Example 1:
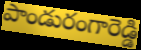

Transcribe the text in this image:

పాండురంగారెడ్డి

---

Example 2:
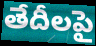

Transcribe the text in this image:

తేదీలపై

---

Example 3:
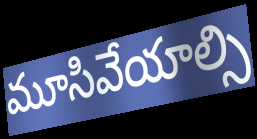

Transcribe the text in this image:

మూసివేయాల్సి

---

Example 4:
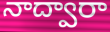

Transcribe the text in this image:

నాద్వారా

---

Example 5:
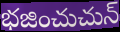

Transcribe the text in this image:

భజించుచున్